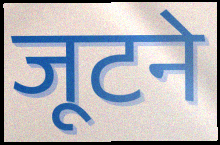
जूटने